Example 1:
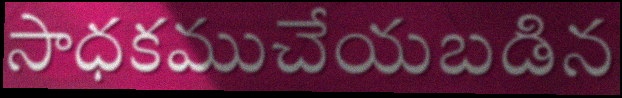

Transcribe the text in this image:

సాధకముచేయబడిన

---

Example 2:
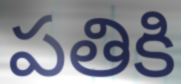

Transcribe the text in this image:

పతికి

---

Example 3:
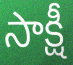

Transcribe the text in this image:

సాక్షీ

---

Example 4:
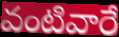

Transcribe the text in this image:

వంటివారే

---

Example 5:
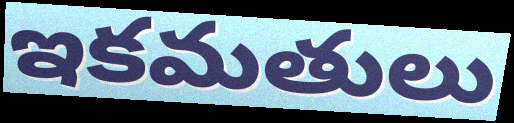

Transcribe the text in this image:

ఇకమతులు